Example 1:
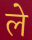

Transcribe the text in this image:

ले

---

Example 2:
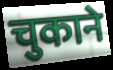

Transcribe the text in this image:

चुकाने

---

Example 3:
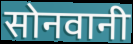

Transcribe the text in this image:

सोनवानी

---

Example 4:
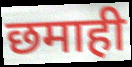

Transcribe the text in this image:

छमाही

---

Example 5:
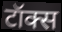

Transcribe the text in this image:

टॉक्स